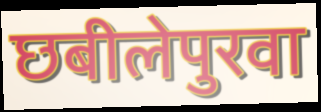
छबीलेपुरवा